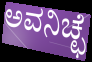
ಅವನಿಚ್ಛೆ